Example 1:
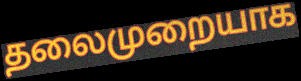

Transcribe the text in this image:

தலைமுறையாக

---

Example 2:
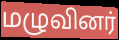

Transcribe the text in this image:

மழுவினர்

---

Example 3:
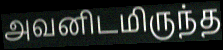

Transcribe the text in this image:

அவனிடமிருந்த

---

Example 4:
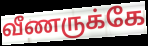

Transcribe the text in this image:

வீணருக்கே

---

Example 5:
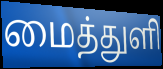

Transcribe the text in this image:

மைத்துளி